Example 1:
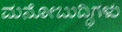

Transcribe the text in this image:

ಮನೋಬುದ್ಧಿಗಳು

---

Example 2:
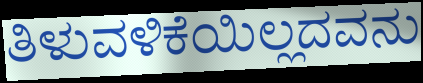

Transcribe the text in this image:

ತಿಳುವಳಿಕೆಯಿಲ್ಲದವನು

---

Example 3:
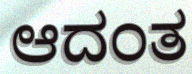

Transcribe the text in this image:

ಆದಂತ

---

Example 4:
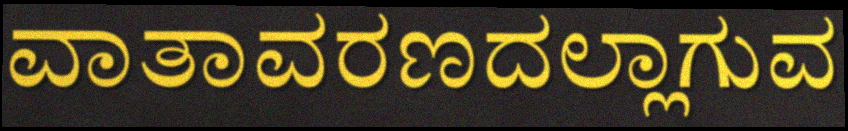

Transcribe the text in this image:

ವಾತಾವರಣದಲ್ಲಾಗುವ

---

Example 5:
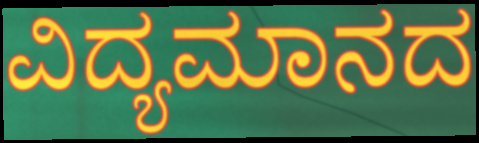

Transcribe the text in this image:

ವಿದ್ಯಮಾನದ